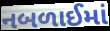
નબળાઈમાં